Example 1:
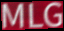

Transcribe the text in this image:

MLG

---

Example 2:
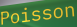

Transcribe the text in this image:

Poisson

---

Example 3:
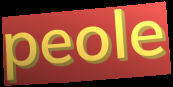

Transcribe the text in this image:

peole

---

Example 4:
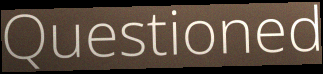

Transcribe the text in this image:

Questioned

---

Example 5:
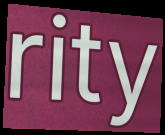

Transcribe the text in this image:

rity